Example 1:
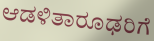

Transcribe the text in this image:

ಆಡಳಿತಾರೂಢರಿಗೆ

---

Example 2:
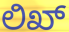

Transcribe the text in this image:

ಲಿಖ್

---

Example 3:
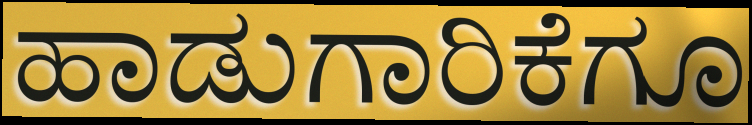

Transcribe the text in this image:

ಹಾಡುಗಾರಿಕೆಗೂ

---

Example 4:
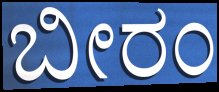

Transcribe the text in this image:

ಬೀರಂ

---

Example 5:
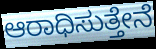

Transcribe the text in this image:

ಆರಾಧಿಸುತ್ತೇನೆ